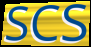
SCS